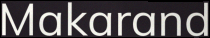
Makarand